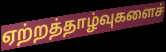
ஏற்றத்தாழ்வுகளைச்